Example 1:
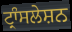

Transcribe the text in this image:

ਟ੍ਰਾੰਸਲੇਸ਼ਨ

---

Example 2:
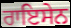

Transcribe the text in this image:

ਰਾਇਸੇਨ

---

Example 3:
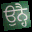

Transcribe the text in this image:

ਉਨ੍ਹੈ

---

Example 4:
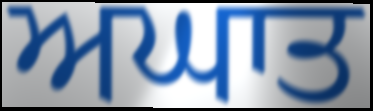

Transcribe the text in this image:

ਅਘਾਤ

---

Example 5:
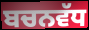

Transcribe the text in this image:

ਬਚਨਵੱਧ